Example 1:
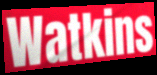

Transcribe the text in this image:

Watkins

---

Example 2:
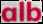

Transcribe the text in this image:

alb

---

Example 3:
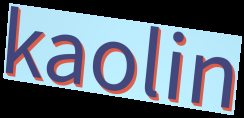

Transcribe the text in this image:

kaolin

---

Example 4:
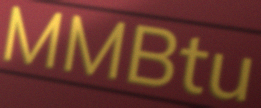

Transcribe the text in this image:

MMBtu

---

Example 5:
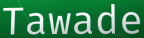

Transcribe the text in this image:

Tawade